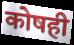
कोषही